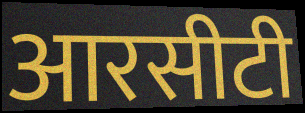
आरसीटी